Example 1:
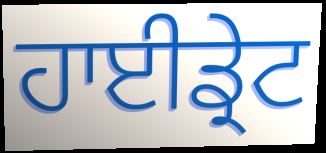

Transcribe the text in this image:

ਹਾਈਡ੍ਰੇਟ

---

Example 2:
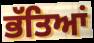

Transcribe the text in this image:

ਭੱਤਿਆਂ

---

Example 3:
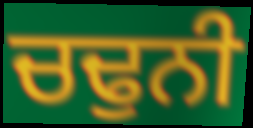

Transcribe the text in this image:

ਚਢੁਨੀ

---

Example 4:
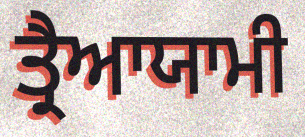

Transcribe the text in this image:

ਤ੍ਰੈਆਯਾਮੀ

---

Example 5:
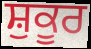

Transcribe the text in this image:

ਸ਼ੁਕੂਰ